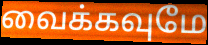
வைக்கவுமே